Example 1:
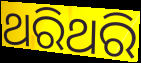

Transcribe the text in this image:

ଥରିଥରି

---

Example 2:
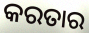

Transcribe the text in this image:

କରତାର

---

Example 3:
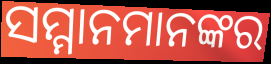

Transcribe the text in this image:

ସମ୍ମାନମାନଙ୍କର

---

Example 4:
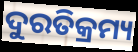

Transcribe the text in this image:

ଦୁରତିକ୍ରମ୍ୟ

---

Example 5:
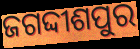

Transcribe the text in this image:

ଜଗଦ୍ଦୀଶପୁର